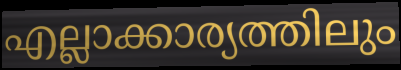
എല്ലാക്കാര്യത്തിലും